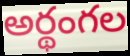
అర్థంగల